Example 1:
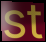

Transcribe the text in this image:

st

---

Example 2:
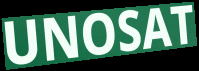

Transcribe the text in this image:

UNOSAT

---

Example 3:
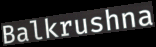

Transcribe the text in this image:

Balkrushna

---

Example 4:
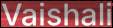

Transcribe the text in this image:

Vaishali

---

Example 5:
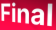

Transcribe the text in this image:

Final